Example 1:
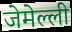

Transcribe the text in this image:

जेमेल्ली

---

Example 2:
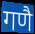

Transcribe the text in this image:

गणै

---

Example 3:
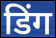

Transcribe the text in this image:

डिंग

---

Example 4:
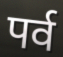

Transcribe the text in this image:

पर्व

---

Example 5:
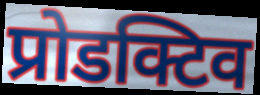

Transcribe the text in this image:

प्रोडक्टिव